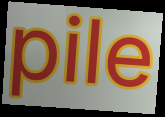
pile